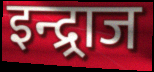
इन्द्र्राज